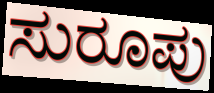
ಸುರೂಪು